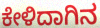
ಕೇಳಿದಾಗಿನ